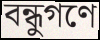
বন্ধুগণে